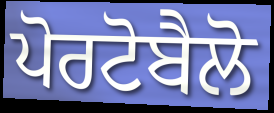
ਪੋਰਟੋਬੈਲੋ